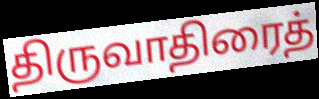
திருவாதிரைத்